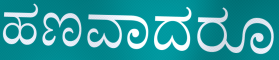
ಹಣವಾದರೂ